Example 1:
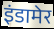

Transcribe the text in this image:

इंडामेर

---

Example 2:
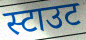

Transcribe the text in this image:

स्टाउट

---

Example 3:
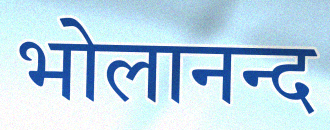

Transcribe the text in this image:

भोलानन्द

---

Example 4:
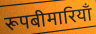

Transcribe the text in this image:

रूपबीमारियाँ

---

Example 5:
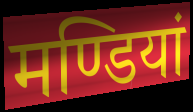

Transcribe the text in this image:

मण्डियां